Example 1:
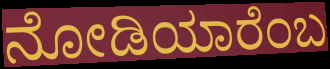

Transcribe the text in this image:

ನೋಡಿಯಾರೆಂಬ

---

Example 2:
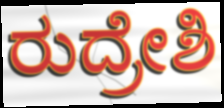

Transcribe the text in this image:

ರುದ್ರೇಶಿ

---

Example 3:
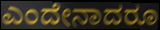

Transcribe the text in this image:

ಎಂದೇನಾದರೂ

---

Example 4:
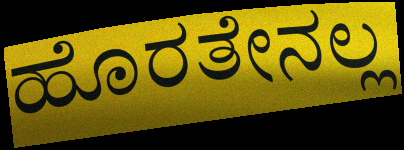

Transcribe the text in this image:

ಹೊರತೇನಲ್ಲ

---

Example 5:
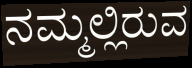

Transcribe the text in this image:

ನಮ್ಮಲ್ಲಿರುವ